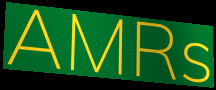
AMRs